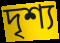
দৃশ্য